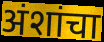
अंशांचा